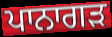
ਪਾਨਾਗੜ